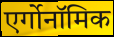
एर्गोनॉमिक